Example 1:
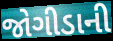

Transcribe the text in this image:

જોગીડાની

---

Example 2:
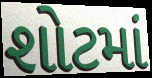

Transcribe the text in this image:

શોટમાં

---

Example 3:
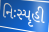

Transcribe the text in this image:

નિઃસ્પૃહી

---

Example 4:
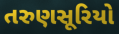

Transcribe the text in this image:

તરુણસૂરિયો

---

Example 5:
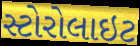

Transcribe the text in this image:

સ્ટોરોલાઇટ